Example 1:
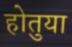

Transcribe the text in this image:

होतुया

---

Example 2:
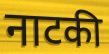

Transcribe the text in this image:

नाटकी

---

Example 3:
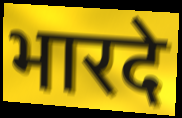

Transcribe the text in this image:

भारदे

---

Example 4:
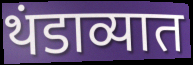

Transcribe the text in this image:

थंडाव्यात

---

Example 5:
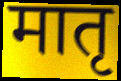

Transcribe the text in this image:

मातृ